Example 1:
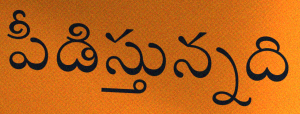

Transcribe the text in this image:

పీడిస్తున్నది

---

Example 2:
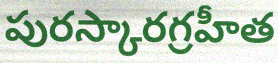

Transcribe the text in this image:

పురస్కారగ్రహీత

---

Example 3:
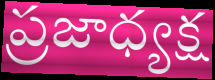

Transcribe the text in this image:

ప్రజాధ్యక్ష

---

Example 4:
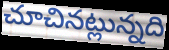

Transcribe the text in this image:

చూచినట్లున్నది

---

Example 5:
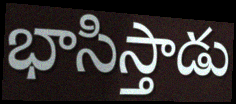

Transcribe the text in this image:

భాసిస్తాడు